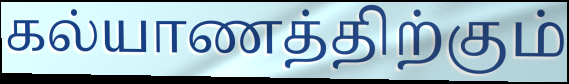
கல்யாணத்திற்கும்